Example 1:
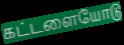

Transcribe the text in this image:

கட்டளையோடு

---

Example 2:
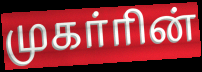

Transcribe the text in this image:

முகர்ரின்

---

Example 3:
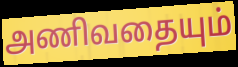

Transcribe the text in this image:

அணிவதையும்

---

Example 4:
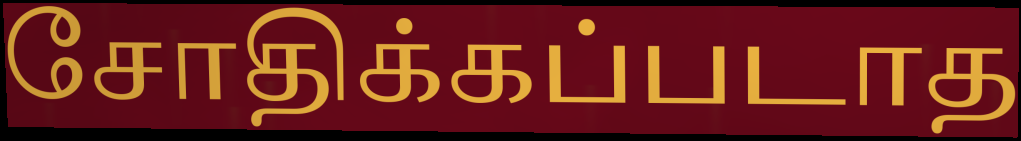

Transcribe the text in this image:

சோதிக்கப்படாத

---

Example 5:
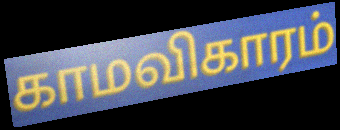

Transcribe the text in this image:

காமவிகாரம்